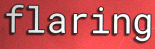
flaring